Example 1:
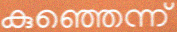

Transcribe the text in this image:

കുഞ്ഞെന്ന്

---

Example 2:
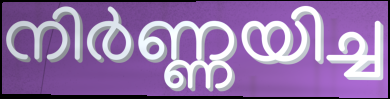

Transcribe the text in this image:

നിർണ്ണയിച്ച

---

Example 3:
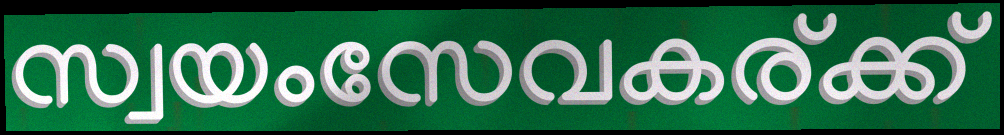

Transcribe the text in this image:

സ്വയംസേവകര്ക്ക്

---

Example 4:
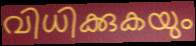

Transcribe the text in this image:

വിധിക്കുകയും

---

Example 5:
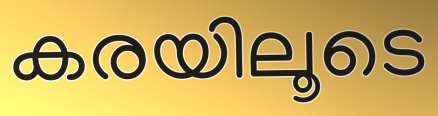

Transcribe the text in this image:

കരയിലൂടെ